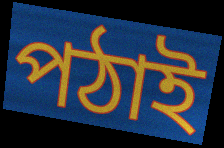
পঠাই